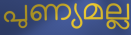
പുണ്യമല്ല